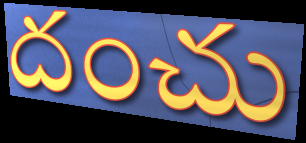
దంచు